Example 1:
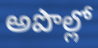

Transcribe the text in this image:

అపొల్లో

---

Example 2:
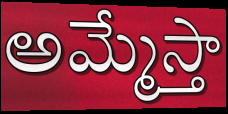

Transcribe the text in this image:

అమ్మేస్తా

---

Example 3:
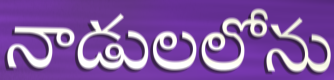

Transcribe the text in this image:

నాడులలోను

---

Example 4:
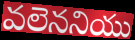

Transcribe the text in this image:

వలెననియు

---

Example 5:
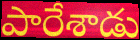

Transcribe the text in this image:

పారేశాడు